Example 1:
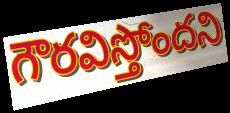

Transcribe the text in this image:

గౌరవిస్తోందని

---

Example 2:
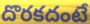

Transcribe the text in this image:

దొరకదంటే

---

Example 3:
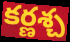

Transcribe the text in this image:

కర్ణశ్చ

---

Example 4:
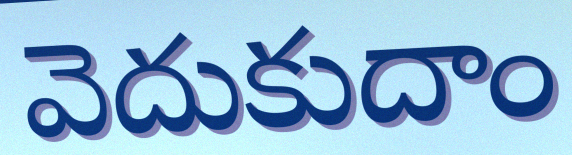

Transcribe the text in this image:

వెదుకుదాం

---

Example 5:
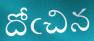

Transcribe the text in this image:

దోఁచిన